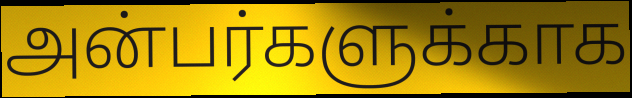
அன்பர்களுக்காக